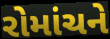
રોમાંચને